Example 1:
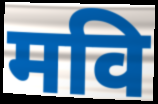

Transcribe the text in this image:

मवि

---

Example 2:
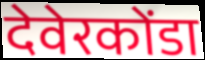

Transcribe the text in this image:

देवेरकोंडा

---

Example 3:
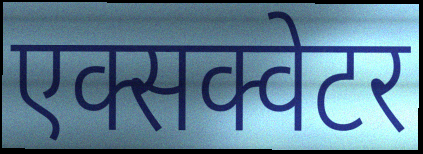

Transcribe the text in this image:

एक्सक्वेटर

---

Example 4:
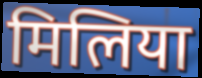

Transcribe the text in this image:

मिलिया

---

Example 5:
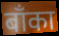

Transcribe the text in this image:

बाँका